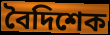
বৈদিশেক